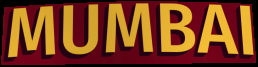
MUMBAI